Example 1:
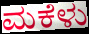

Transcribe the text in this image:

ಮಕೆಳು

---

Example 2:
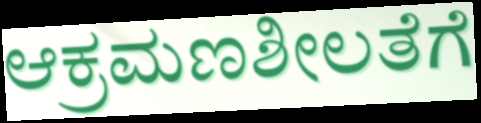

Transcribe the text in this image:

ಆಕ್ರಮಣಶೀಲತೆಗೆ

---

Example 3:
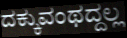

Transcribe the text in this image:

ದಕ್ಕುವಂಥದ್ದಲ್ಲ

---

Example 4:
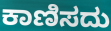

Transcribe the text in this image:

ಕಾಣಿಸದು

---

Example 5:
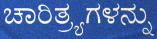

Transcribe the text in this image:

ಚಾರಿತ್ರ್ಯಗಳನ್ನು